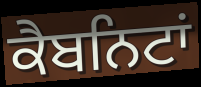
ਕੈਬਨਿਟਾਂ